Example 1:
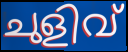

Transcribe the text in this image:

ചുളിവ്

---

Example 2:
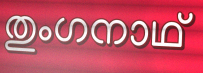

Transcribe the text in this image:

തുംഗനാഥ്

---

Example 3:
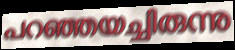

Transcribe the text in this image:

പറഞ്ഞയച്ചിരുന്നു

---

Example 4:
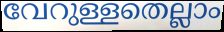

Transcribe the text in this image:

വേറുള്ളതെല്ലാം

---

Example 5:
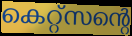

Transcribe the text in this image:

കെറ്റ്സന്റെ